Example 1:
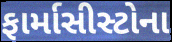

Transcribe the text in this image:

ફાર્માસીસ્ટોના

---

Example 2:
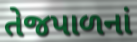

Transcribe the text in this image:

તેજપાળનાં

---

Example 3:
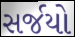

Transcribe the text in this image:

સર્જયો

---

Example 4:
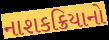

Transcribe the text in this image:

નાશકક્રિયાનો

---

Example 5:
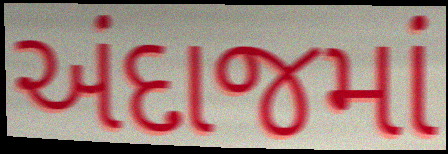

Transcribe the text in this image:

અંદાજમાં